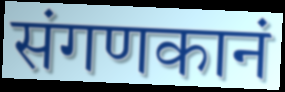
संगणकानं